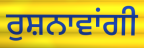
ਰੁਸ਼ਨਾਵਾਂਗੀ